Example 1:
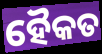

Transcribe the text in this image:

ହୈକତ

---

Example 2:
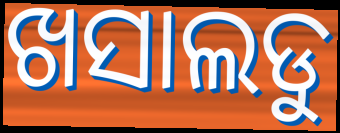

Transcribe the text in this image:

ଖସାଲଡୁ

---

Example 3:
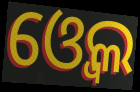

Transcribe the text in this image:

ଓ୍ବେଲ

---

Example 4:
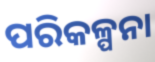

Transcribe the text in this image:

ପରିକଳ୍ପନା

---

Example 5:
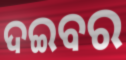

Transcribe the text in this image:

ଦଇବର